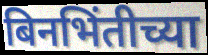
बिनभिंतीच्या